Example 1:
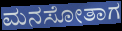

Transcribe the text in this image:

ಮನಸೋತಾಗ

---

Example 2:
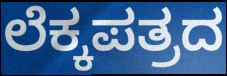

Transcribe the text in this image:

ಲೆಕ್ಕಪತ್ರದ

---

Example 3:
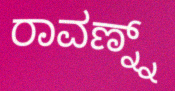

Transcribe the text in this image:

ರಾವಣ್ನ್ನ್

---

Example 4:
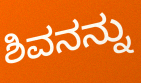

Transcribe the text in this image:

ಶಿವನನ್ನು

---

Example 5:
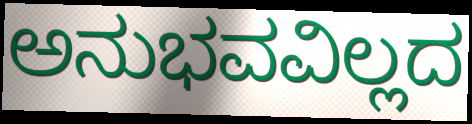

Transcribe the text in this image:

ಅನುಭವವಿಲ್ಲದ